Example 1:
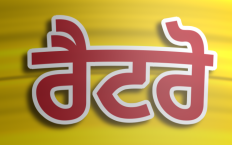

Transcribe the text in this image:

ਰੈਟਰੋ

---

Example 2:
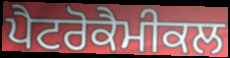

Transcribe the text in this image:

ਪੈਟਰੋਕੈਮੀਕਲ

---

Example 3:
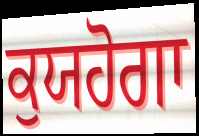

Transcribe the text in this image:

ਕੁਯਹੋਗਾ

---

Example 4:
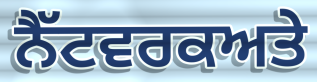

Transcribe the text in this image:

ਨੈੱਟਵਰਕਅਤੇ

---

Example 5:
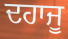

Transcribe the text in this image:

ਦਹਾਜੂ